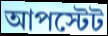
আপস্টেট